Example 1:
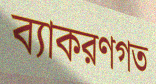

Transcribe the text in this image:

ব্যাকরণগত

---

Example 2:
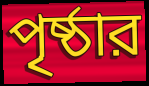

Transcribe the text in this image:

পৃষ্ঠার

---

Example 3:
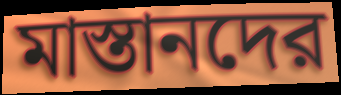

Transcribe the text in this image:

মাস্তানদের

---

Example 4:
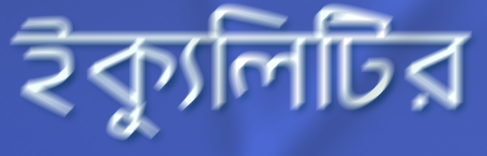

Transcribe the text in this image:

ইক্যুলিটির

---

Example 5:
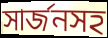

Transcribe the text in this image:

সার্জনসহ